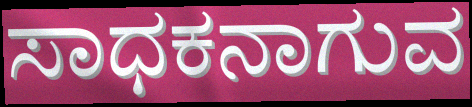
ಸಾಧಕನಾಗುವ